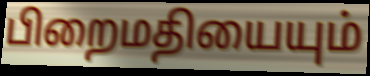
பிறைமதியையும்